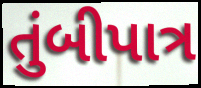
તુંબીપાત્ર